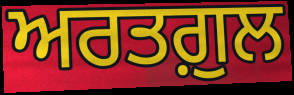
ਅਰਤਗ਼ੁਲ